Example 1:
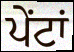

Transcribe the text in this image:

ਪੇਂਟਾਂ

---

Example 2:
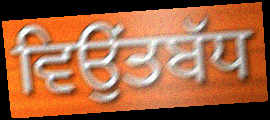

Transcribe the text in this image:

ਵਿਉਂਤਬੱਧ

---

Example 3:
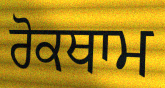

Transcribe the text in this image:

ਰੋਕਥਾਮ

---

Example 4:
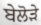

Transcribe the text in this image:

ਬੇਲੋੜੇ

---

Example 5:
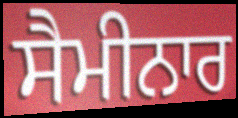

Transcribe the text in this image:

ਸੈਮੀਨਾਰ